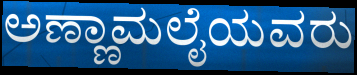
ಅಣ್ಣಾಮಲೈಯವರು